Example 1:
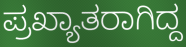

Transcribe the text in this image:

ಪ್ರಖ್ಯಾತರಾಗಿದ್ದ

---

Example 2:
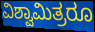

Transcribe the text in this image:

ವಿಶ್ವಾಮಿತ್ರರೂ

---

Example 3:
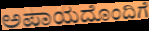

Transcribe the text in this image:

ಅಪಾಯದೊಂದಿಗೆ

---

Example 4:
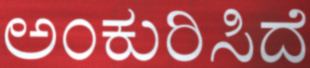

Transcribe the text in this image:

ಅಂಕುರಿಸಿದೆ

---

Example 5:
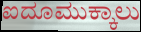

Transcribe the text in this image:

ಐದೂಮುಕ್ಕಾಲು